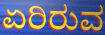
ಏರಿರುವ